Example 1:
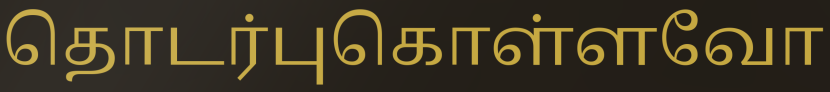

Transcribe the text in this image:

தொடர்புகொள்ளவோ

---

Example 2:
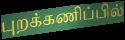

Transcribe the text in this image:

புறக்கணிப்பில்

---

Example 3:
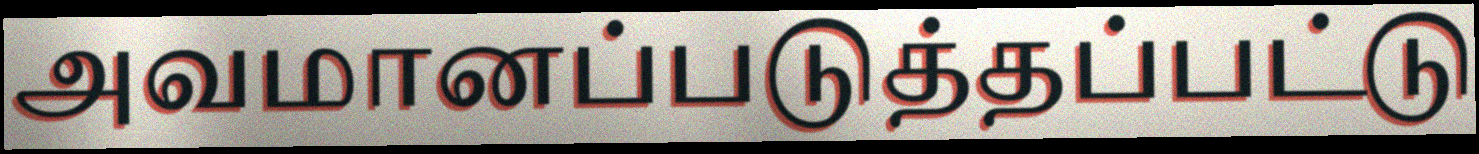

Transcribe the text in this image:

அவமானப்படுத்தப்பட்டு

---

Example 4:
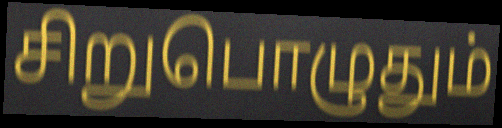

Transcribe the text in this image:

சிறுபொழுதும்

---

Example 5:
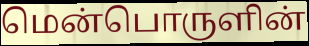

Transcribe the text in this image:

மென்பொருளின்